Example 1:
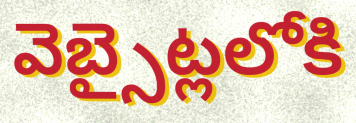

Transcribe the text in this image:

వెబ్సైట్లలోకి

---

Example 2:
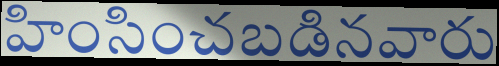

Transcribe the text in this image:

హింసించబడినవారు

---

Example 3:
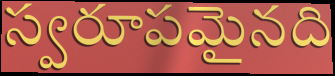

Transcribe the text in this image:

స్వరూపమైనది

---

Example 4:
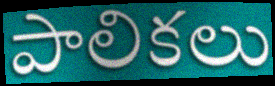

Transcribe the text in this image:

పాలికలు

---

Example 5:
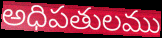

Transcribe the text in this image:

అధిపతులము